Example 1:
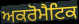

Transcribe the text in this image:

ਅਕਰੋਮੈਟਿਕ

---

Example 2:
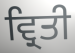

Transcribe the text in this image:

ਵ੍ਰਿਤੀ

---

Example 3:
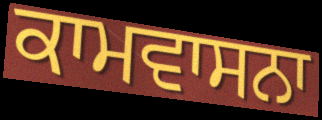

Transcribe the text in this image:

ਕਾਮਵਾਸਨਾ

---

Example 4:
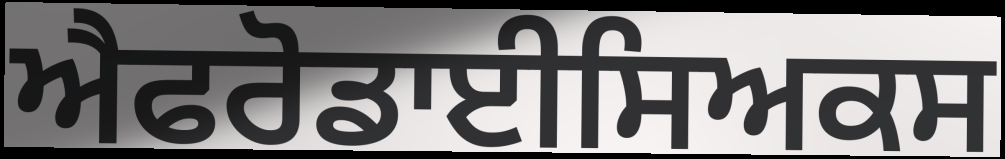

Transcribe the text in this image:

ਐਫਰੋਡਾਈਸਿਅਕਸ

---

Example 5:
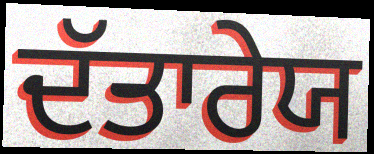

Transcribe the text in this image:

ਦੱਤਾਰੇਯ